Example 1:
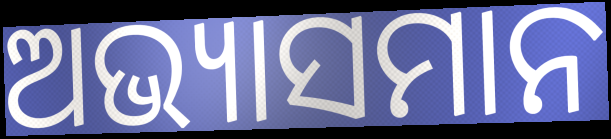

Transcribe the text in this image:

ଅଭ୍ୟାସମାନ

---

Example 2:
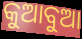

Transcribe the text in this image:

କୁଆବୁଆ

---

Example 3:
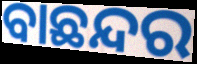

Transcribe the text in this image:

ବାଛନ୍ଦର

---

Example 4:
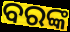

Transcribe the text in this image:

ବରଙ୍କ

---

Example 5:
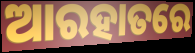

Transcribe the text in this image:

ଆରହାତରେ